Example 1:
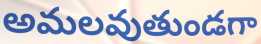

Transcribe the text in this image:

అమలవుతుండగా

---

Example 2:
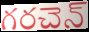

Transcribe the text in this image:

గరచెన్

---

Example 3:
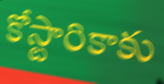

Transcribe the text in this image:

కోస్టారికాకు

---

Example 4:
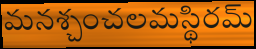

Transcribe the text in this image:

మనశ్చంచలమస్థిరమ్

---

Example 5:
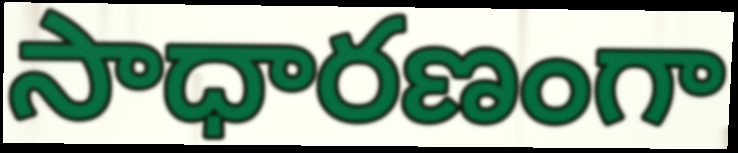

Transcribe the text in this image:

సాధారణంగా